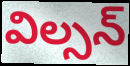
విల్సన్